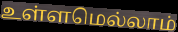
உள்ளமெல்லாம்